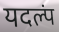
यदल्पं